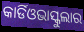
କାର୍ଡିଓଭାସ୍କୁଲାର